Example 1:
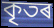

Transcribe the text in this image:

কৃতৰ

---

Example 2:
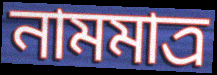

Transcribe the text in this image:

নামমাত্ৰ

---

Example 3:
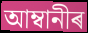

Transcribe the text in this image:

আম্বানীৰ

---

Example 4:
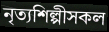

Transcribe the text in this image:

নৃত্যশিল্পীসকল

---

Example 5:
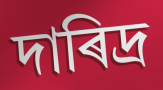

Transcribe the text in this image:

দাৰিদ্ৰ